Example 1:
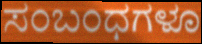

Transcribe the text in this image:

ಸಂಬಂಧಗಳೂ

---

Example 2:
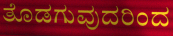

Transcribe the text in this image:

ತೊಡಗುವುದರಿಂದ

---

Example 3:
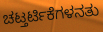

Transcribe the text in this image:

ಚಟ್ತರ್ಟಿಕೆಗಳನತು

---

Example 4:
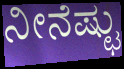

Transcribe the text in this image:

ನೀನೆಷ್ಟು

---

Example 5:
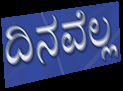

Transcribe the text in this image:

ದಿನವೆಲ್ಲ